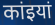
कांइयां